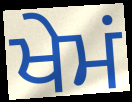
ਖੇਮਂ